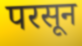
परसून